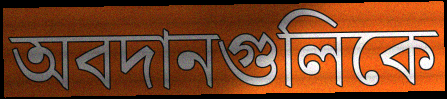
অবদানগুলিকে